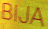
BIJA